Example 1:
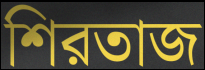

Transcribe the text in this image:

শিরতাজ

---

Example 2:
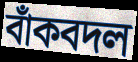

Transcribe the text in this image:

বাঁকবদল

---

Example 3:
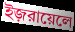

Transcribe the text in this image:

ইজ়রায়েলে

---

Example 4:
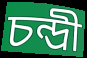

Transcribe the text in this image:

চন্দ্রী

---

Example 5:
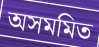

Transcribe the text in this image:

অসমমিত